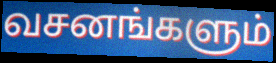
வசனங்களும்